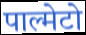
पाल्मेटो